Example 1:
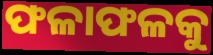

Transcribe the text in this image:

ଫଳାଫଳକୁ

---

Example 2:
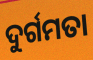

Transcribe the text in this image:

ଦୁର୍ଗମତା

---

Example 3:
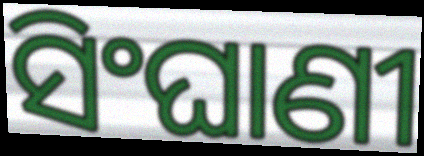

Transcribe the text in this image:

ସିଂଘାଣୀ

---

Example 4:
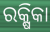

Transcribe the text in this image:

ରକ୍ଷିକା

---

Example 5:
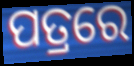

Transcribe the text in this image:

ପତ୍ରରେ